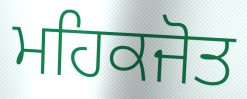
ਮਹਿਕਜੋਤ